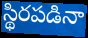
స్థిరపడినా